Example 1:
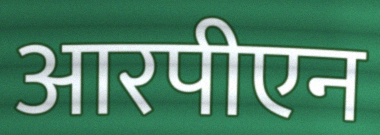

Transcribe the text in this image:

आरपीएन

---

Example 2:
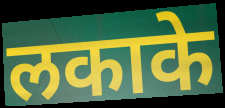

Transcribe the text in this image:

लकाके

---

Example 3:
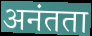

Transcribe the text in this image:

अनंतता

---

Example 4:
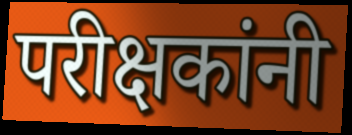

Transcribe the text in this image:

परीक्षकांनी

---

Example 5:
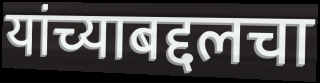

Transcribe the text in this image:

यांच्याबद्दलचा